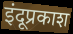
इंदूप्रकाश